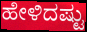
ಹೇಳಿದಷ್ಟು